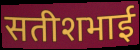
सतीशभाई